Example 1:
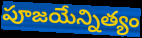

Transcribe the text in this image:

పూజయేన్నిత్యం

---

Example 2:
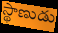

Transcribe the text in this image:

స్థాణుడు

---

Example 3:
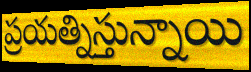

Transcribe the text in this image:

ప్రయత్నిస్తున్నాయి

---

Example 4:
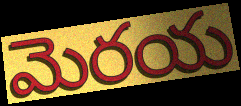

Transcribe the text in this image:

మెరయ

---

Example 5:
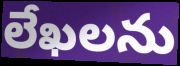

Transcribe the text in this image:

లేఖలను